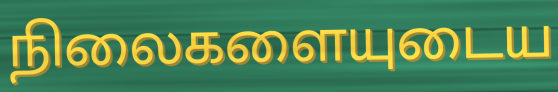
நிலைகளையுடைய